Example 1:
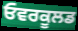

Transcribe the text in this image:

ਓਵਰਕੂਲਡ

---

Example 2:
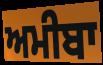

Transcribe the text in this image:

ਅਮੀਬਾ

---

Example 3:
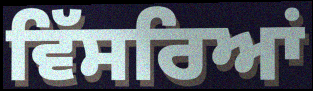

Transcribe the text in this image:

ਵਿੱਸਰਿਆਂ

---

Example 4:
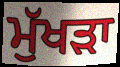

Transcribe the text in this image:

ਮੁੱਖੜਾ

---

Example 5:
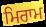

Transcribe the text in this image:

ਮਿਰਾਮ